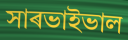
সাৰভাইভাল